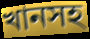
খানসহ